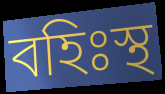
বহিঃস্থ